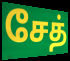
சேத்